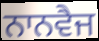
ਨਾਨਵੈਜ